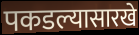
पकडल्यासारखे